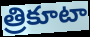
త్రికూటా